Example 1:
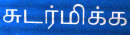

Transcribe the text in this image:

சுடர்மிக்க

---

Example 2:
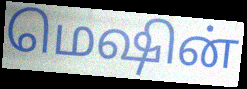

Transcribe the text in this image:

மெஷின்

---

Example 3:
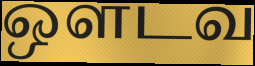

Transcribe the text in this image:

ஔடவ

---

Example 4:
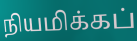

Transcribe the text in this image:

நியமிக்கப்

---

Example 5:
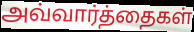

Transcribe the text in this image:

அவ்வார்த்தைகள்